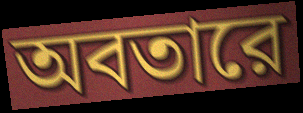
অবতারে